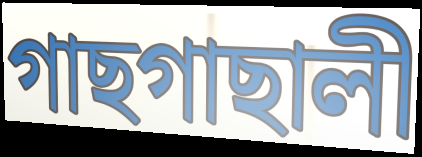
গাছগাছালী